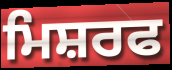
ਮਿਸ਼ਰਫ